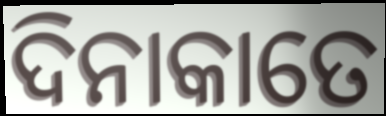
ଦିନାକାତେ